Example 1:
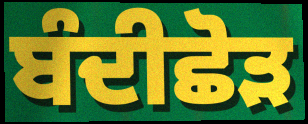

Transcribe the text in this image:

ਬੰਦੀਛੋੜ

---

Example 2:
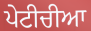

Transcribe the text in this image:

ਪੇਟੀਚੀਆ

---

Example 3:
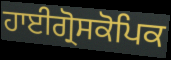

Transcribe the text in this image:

ਹਾਈਗ੍ਰੋਸਕੋਪਿਕ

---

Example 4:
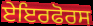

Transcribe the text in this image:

ਏਇਰਫੋਰਸ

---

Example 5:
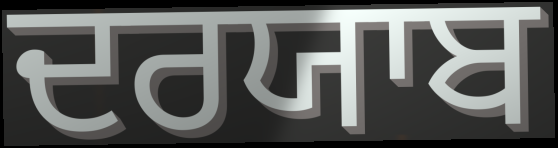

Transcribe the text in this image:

ਦਰਯਾਬ